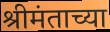
श्रीमंताच्या